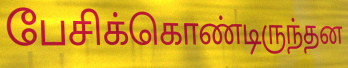
பேசிக்கொண்டிருந்தன